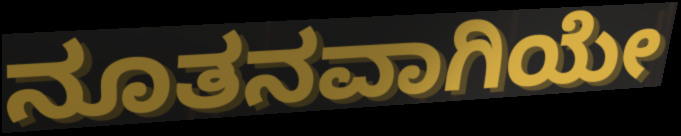
ನೂತನವಾಗಿಯೇ